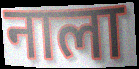
नाला